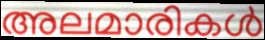
അലമാരികൾ